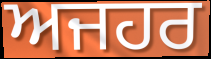
ਅਜਹਰ